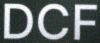
DCF